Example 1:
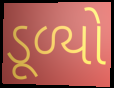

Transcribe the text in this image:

ડૂળ્યો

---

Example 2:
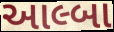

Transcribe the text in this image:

આલ્બા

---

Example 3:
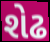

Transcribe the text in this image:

શેઢ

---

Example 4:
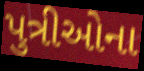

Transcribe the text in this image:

પુત્રીઓના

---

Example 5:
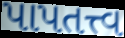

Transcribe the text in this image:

પાપતત્ત્વ